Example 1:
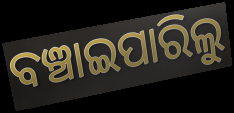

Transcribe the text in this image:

ବଞ୍ଚାଇପାରିଲୁ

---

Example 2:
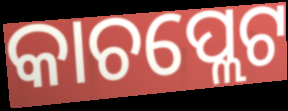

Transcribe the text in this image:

କାଚପ୍ଲେଟ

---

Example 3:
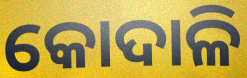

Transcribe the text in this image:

କୋଦାଳି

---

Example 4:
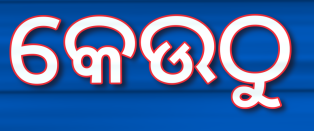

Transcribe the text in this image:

କେଉଠୁ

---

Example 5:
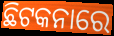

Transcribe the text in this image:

ଛିଟକନାରେ